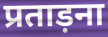
प्रताड़ना